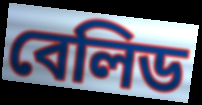
বেলিড